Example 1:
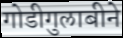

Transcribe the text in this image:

गोडीगुलाबीने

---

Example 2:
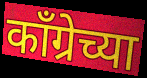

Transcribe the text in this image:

काँग्रेच्या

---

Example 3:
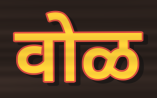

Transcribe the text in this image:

वोळ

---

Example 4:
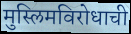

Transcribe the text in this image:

मुस्लिमविरोधाची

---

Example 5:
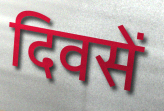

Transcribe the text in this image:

दिवसें